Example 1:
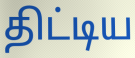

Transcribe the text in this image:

திட்டிய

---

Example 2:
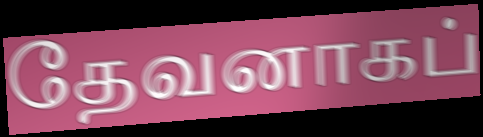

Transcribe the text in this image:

தேவனாகப்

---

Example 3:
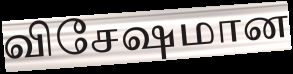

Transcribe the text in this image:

விசேஷமான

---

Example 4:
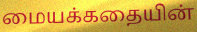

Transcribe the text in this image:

மையக்கதையின்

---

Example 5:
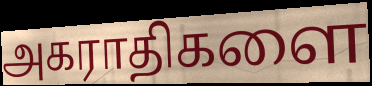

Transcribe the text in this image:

அகராதிகளை